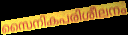
സൈനികപരിശീലനം